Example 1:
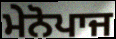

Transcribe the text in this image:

ਮੇਨੋਪਾਜ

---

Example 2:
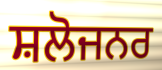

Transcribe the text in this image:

ਸ਼ਲੋਜਨਰ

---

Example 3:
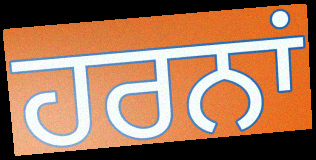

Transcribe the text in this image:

ਹਰਨਾਂ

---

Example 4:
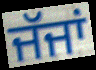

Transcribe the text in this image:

ਜੱਜਾਂ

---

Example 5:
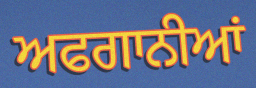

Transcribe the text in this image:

ਅਫਗਾਨੀਆਂ